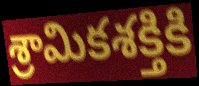
శ్రామికశక్తికి